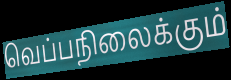
வெப்பநிலைக்கும்